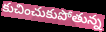
కుచించుకుపోతున్న